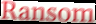
Ransom